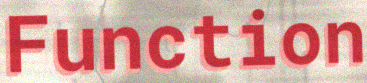
Function